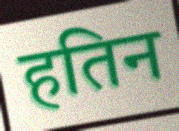
हतिन